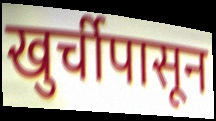
खुर्चीपासून